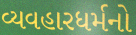
વ્યવહારધર્મનો